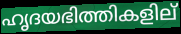
ഹൃദയഭിത്തികളില്